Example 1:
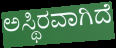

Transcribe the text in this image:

ಅಸ್ಥಿರವಾಗಿದೆ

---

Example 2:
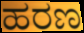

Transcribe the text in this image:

ಹರಣ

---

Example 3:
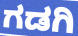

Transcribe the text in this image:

ಗಡಗಿ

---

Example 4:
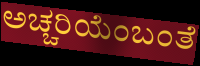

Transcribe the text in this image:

ಅಚ್ಚರಿಯೆಂಬಂತೆ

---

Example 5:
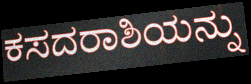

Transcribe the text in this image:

ಕಸದರಾಶಿಯನ್ನು